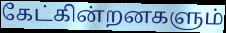
கேட்கின்றனகளும்